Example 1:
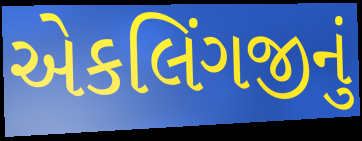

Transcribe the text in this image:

એકલિંગજીનું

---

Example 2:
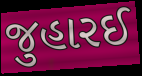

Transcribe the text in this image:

જુહારઈ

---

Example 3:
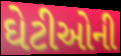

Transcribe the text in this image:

ઘેટીઓની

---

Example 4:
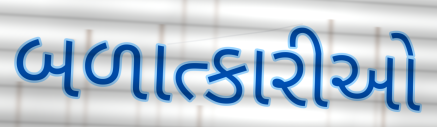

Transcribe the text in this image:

બળાત્કારીઓ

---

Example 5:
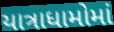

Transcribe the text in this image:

યાત્રાધામોમાં